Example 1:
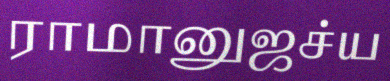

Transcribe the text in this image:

ராமானுஜச்ய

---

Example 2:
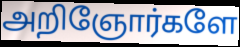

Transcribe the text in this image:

அறிஞோர்களே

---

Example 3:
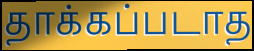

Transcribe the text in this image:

தாக்கப்படாத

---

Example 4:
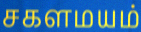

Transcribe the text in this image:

சகளமயம்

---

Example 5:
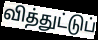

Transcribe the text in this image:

வித்துட்டுப்